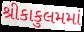
શ્રીકાકુલમમાં